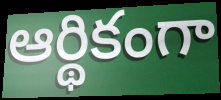
ఆర్థికంగా